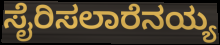
ಸೈರಿಸಲಾರೆನಯ್ಯ